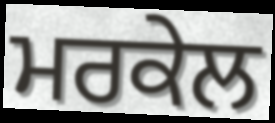
ਮਰਕੇਲ